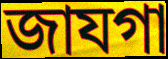
জাযগা